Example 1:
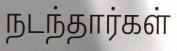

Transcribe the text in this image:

நடந்தார்கள்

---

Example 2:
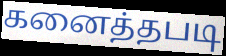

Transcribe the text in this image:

கனைத்தபடி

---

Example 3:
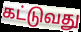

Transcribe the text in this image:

கட்டுவது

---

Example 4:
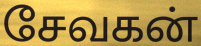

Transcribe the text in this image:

சேவகன்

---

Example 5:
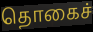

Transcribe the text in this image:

தொகைச்